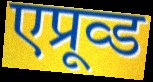
एप्रूव्ड